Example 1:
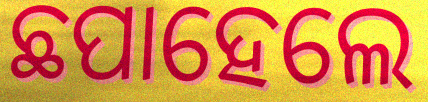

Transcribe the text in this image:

ଛପାହେଲେ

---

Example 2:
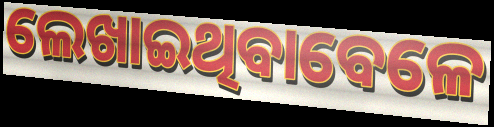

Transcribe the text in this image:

ଲେଖାଇଥିବାବେଳେ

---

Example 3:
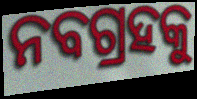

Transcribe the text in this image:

ନବଗ୍ରହକୁ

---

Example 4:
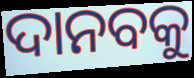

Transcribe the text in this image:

ଦାନବକୁ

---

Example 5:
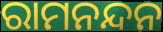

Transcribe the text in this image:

ରାମନନ୍ଦନ